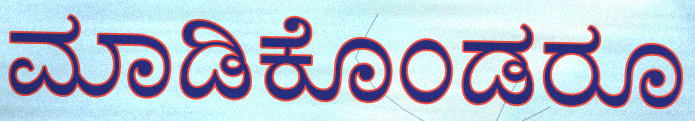
ಮಾಡಿಕೊಂಡರೂ